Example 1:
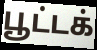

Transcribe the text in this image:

பூட்டக்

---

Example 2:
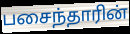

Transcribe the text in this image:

பசைந்தாரின்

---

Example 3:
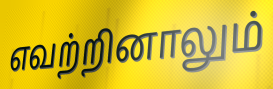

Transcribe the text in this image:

எவற்றினாலும்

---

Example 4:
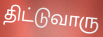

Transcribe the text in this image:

திட்டுவாரு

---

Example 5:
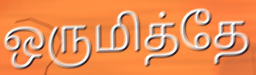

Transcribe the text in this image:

ஒருமித்தே